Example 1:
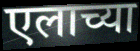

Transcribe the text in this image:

एलाच्या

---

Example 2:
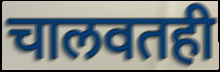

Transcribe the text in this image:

चालवतही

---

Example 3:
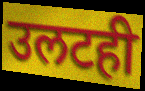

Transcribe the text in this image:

उलटही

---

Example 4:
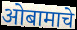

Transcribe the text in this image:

ओबामाचे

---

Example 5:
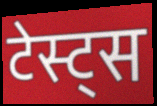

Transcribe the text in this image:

टेस्ट्स